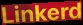
Linkerd